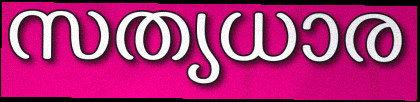
സത്യധാര